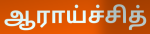
ஆராய்ச்சித்